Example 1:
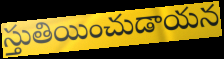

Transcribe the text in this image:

స్తుతియించుడాయన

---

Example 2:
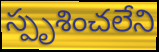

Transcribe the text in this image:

స్పృశించలేని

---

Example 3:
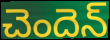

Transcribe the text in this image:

చెందెన్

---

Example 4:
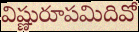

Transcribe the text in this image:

విష్ణురూపమిదివో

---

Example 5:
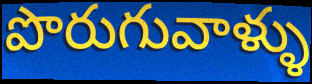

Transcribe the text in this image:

పొరుగువాళ్ళు